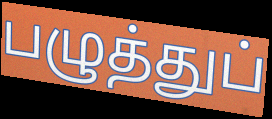
பழுத்துப்